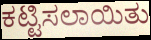
ಕಟ್ಟಿಸಲಾಯಿತು